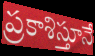
ప్రకాశిస్తూనే